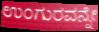
ಉಂಗುರವನ್ನೇ